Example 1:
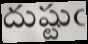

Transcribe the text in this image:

దుష్టుఁ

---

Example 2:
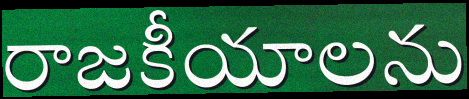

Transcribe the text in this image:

రాజకీయాలను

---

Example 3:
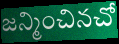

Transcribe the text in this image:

జన్మించినచో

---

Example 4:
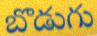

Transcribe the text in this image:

బొడుగు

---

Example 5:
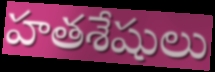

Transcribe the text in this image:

హతశేషులు